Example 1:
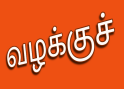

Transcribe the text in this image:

வழக்குச்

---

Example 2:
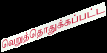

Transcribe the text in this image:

வெறுத்தொதுக்கப்பட்ட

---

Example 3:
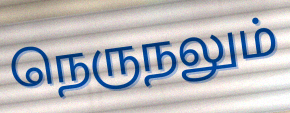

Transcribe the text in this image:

நெருநலும்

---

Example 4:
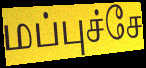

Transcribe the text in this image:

மப்புச்சே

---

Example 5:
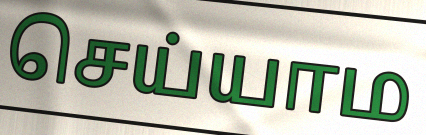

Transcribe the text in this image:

செய்யாம